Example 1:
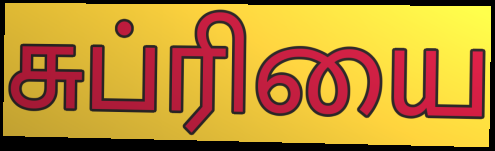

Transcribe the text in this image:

சுப்ரியை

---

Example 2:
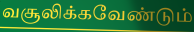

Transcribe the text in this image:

வசூலிக்கவேண்டும்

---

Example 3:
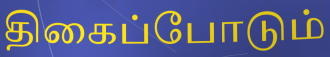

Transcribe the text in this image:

திகைப்போடும்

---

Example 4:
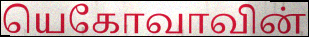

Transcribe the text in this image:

யெகோவாவின்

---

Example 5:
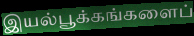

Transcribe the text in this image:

இயல்பூக்கங்களைப்